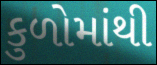
કુળોમાંથી